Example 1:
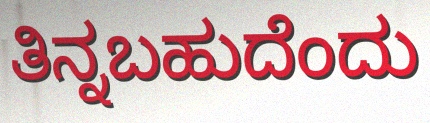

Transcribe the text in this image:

ತಿನ್ನಬಹುದೆಂದು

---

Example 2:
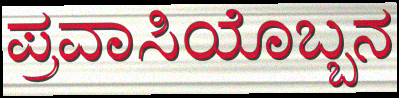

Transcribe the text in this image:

ಪ್ರವಾಸಿಯೊಬ್ಬನ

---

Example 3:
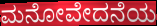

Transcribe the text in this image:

ಮನೋವೇದನೆಯ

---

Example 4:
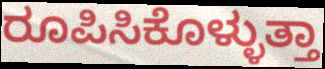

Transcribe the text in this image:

ರೂಪಿಸಿಕೊಳ್ಳುತ್ತಾ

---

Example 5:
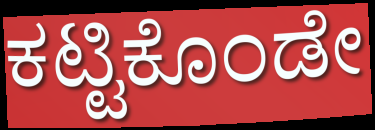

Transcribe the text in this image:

ಕಟ್ಟಿಕೊಂಡೇ